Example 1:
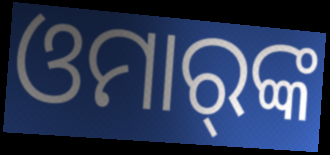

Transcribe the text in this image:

ଓମାର୍‌ଙ୍କ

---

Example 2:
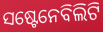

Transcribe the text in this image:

ସଷ୍ଟେନେବିଲିଟି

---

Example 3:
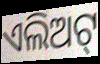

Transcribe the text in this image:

ଏଲିଅଟ୍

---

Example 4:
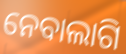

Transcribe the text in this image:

ନେବାଲାଗି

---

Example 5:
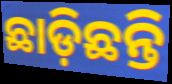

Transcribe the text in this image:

ଛାଡ଼ିଛନ୍ତି